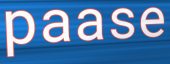
paase